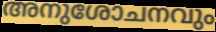
അനുശോചനവും